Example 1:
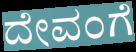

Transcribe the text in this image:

ದೇವಂಗೆ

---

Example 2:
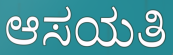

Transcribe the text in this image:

ಆಸಯತಿ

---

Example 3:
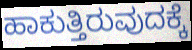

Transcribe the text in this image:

ಹಾಕುತ್ತಿರುವುದಕ್ಕೆ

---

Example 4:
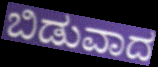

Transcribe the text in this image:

ಬಿಡುವಾದ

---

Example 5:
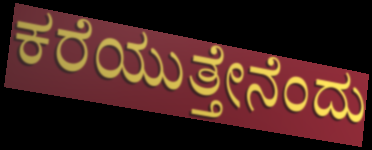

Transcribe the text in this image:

ಕರೆಯುತ್ತೇನೆಂದು